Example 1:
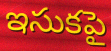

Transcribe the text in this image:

ఇసుకపై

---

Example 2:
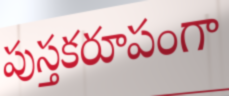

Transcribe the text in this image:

పుస్తకరూపంగా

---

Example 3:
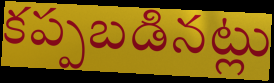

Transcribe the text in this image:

కప్పబడినట్లు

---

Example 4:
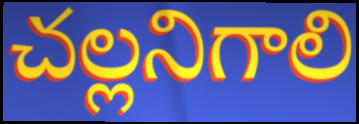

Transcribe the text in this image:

చల్లనిగాలి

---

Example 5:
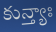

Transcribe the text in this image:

కున్త్యాః